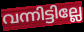
വന്നിട്ടില്ലേ